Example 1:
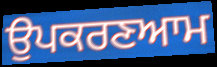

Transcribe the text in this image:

ਉਪਕਰਣਆਮ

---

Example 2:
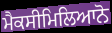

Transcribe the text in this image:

ਮੈਕਸੀਮਿਲਿਆਨੋ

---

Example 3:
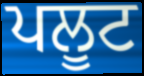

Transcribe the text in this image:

ਪਲੂਟ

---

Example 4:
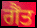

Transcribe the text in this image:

ਗੈਂਤ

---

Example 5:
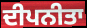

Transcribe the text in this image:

ਦੀਪਨੀਤਾ